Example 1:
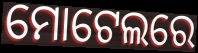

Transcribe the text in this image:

ମୋଟେଲରେ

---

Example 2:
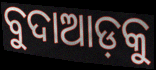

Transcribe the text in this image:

ବୁଦାଆଡ଼କୁ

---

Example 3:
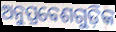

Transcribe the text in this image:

ଅନୁପ୍ରବେଶଗୁଡ଼ିକ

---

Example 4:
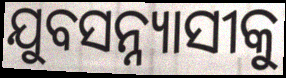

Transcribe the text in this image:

ଯୁବସନ୍ନ୍ୟାସୀକୁ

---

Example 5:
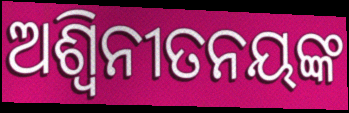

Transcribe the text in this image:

ଅଶ୍ୱିନୀତନୟଙ୍କ